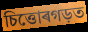
চিত্তোৰগড়ত